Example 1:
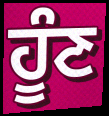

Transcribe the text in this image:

ਹੂੰਣ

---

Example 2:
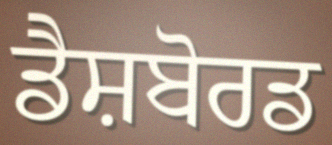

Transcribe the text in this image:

ਡੈਸ਼ਬੋਰਡ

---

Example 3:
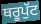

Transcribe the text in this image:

ਥਰੂਪੁੱਟ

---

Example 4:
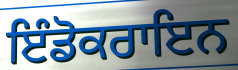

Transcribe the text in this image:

ਇੰਡੋਕਰਾਇਨ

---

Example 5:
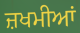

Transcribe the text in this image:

ਜ਼ਖਮੀਆਂ